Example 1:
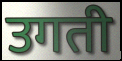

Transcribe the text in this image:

उगती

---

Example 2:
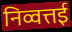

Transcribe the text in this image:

निव्वत्तई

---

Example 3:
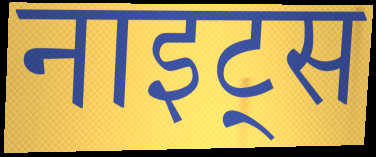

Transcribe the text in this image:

नाइट्स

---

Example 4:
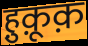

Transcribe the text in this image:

ह़ुक़ूक़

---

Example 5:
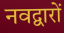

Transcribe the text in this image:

नवद्वारों